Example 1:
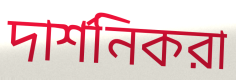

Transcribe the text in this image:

দার্শনিকরা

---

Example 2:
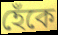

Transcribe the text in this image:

হেঁকে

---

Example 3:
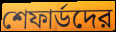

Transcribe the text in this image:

শেফার্ডদের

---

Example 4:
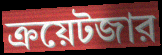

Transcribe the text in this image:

ক্রয়েটজার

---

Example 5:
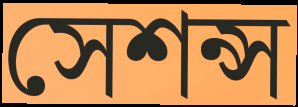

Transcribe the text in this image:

সেশন্স